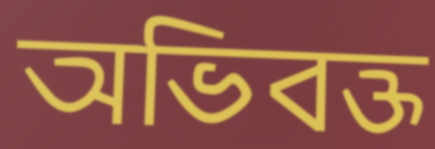
অভিবক্ত